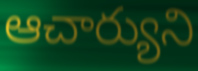
ఆచార్యుని